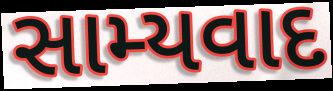
સામ્યવાદ